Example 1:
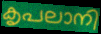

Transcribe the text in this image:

കൃപലാനി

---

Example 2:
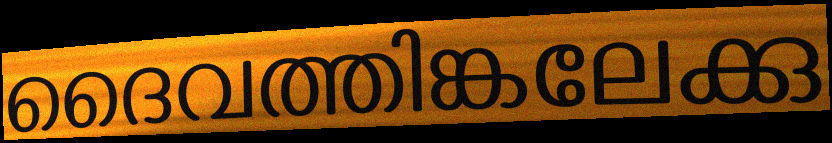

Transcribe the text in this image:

ദൈവത്തിങ്കലേക്കു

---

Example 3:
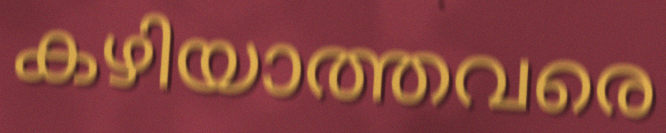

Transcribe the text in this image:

കഴിയാത്തവരെ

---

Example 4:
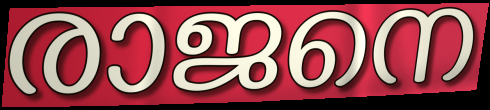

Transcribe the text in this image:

രാജനെ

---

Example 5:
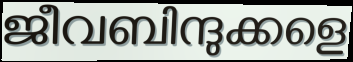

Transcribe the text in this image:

ജീവബിന്ദുക്കളെ